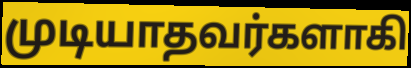
முடியாதவர்களாகி